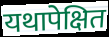
यथापेक्षित